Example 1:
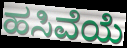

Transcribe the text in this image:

ಹಸಿವೆಯೆ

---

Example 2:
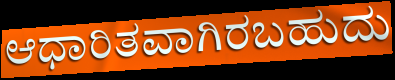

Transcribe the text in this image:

ಆಧಾರಿತವಾಗಿರಬಹುದು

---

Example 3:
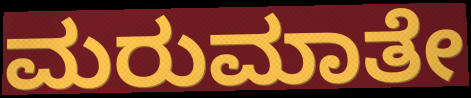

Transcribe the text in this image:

ಮರುಮಾತೇ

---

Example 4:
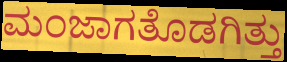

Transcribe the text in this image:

ಮಂಜಾಗತೊಡಗಿತ್ತು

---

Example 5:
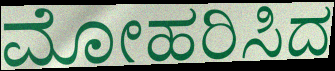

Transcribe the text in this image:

ಮೋಹರಿಸಿದ